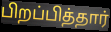
பிறப்பித்தார்